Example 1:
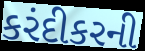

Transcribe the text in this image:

કરંદીકરની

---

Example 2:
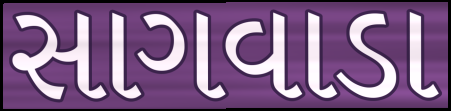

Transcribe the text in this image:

સાગવાડા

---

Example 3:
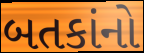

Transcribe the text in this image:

બતકાંનો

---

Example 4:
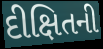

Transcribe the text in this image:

દીક્ષિતની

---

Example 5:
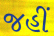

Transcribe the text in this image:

જહીં